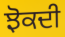
ਝੋਕਦੀ